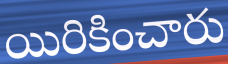
యిరికించారు